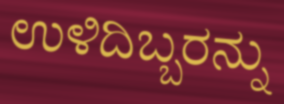
ಉಳಿದಿಬ್ಬರನ್ನು